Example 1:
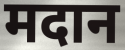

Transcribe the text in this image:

मदान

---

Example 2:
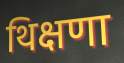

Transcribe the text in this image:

थिक्षणा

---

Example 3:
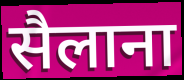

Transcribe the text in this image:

सैलाना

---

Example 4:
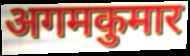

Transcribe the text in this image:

अगमकुमार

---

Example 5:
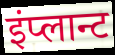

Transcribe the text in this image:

इंप्लान्ट